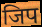
जिप